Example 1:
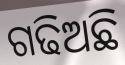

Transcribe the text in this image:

ଗଢିଅଛି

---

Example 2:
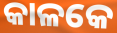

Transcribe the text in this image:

କାଳକେ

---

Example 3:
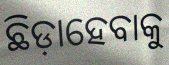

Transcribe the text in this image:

ଛିଡ଼ାହେବାକୁ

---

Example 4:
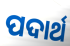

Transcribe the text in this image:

ପଦାର୍ଥ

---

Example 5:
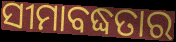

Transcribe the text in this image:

ସୀମାବଦ୍ଧତାର